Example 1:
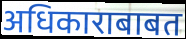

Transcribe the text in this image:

अधिकाराबाबत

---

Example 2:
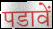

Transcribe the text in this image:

पडावें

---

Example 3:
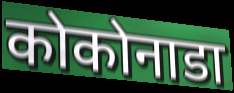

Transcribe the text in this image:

कोकोनाडा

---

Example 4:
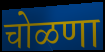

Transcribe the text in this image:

चोळणा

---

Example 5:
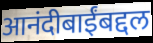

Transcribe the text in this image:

आनंदीबाईंबद्दल